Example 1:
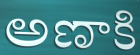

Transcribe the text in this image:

అణాకి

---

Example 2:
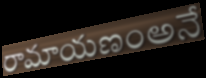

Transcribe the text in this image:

రామాయణంఅనే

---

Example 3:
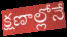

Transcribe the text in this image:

క్షణాల్లోనే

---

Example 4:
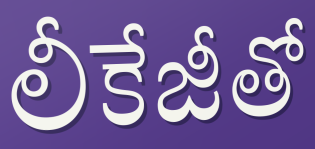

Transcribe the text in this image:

లీకేజీతో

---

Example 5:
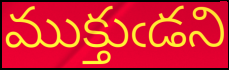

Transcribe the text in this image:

ముక్తుఁడని